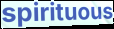
spirituous